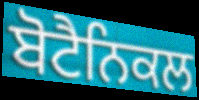
ਬੋਟੈਨਿਕਲ